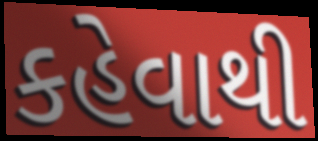
કહેવાથી